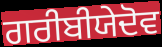
ਗਰੀਬੀਯੇਦੋਵ